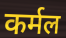
कर्मल